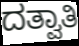
ದತ್ವಾತಿ